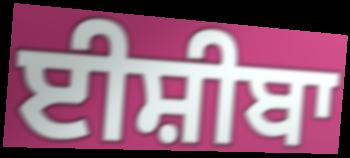
ਈਸ਼ੀਬਾ